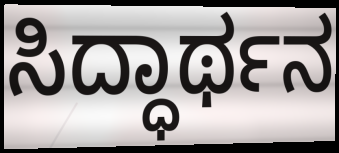
ಸಿದ್ಧಾರ್ಥನ